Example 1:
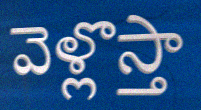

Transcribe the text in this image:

వెళ్లొస్తా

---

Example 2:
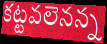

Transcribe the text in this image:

కట్టవలెనన్న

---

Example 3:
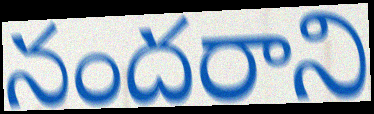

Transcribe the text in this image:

నందరాని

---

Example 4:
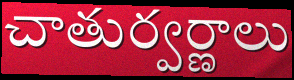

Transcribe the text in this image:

చాతుర్వర్ణాలు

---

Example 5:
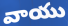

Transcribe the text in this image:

వాయు